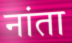
नांता